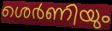
ശെർണിയും